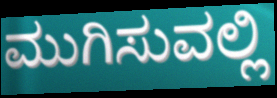
ಮುಗಿಸುವಲ್ಲಿ